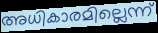
അധികാരമില്ലെന്ന്